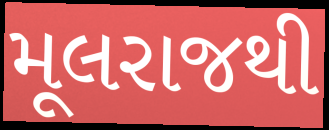
મૂલરાજથી